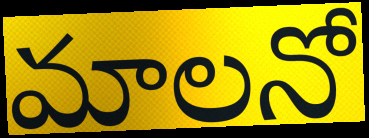
మాలనో